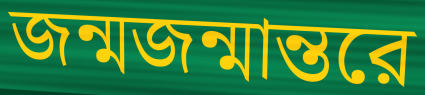
জন্মজন্মান্তরে